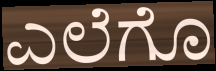
ಎಲೆಗೊ